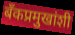
बँकप्रमुखांशी